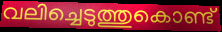
വലിച്ചെടുത്തുകൊണ്ട്